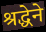
श्रद्धेने